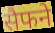
सैफने